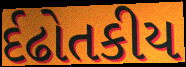
ર્દઢોતકીય